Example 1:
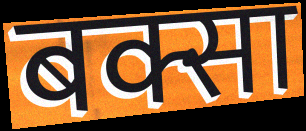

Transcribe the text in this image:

बक्सा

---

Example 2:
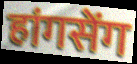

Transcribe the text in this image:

हांगसेंग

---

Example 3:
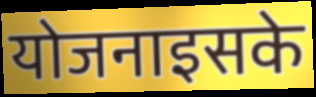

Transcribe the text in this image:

योजनाइसके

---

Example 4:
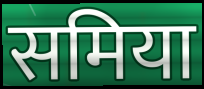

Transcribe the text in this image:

समिया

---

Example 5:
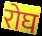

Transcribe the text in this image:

रोघ